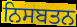
ਨਿਸਬਤਨ